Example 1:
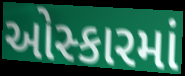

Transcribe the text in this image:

ઓસ્કારમાં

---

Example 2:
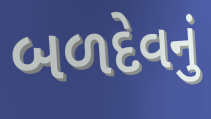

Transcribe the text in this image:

બળદેવનું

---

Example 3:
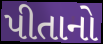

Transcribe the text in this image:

પીતાનો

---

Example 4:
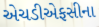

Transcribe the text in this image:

એચડીએફસીના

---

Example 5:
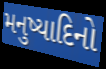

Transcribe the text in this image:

મનુષ્યાદિનો